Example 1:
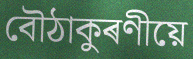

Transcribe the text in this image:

বৌঠাকুৰণীয়ে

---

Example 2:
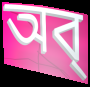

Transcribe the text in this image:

অব্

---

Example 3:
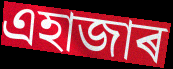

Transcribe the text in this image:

এহাজাৰ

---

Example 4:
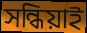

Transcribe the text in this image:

সন্ধিয়াই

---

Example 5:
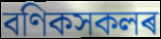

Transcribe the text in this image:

বণিকসকলৰ